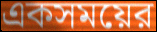
একসময়ের